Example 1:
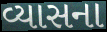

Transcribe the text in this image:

વ્યાસના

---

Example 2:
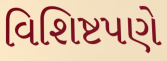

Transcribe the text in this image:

વિશિષ્ટપણે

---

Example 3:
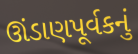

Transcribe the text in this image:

ઊંડાણપૂર્વકનું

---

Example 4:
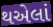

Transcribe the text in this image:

થએલાં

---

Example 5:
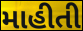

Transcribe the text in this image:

માહીતી